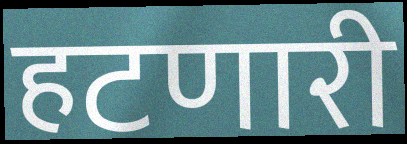
हटणारी